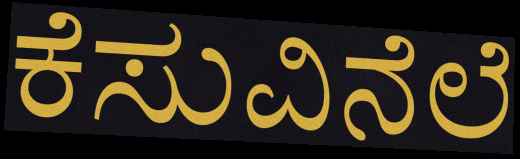
ಕೆಸುವಿನೆಲೆ